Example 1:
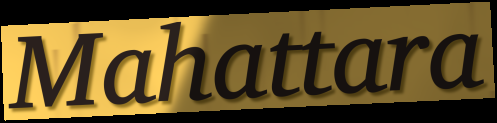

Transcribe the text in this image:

Mahattara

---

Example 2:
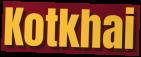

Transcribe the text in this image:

Kotkhai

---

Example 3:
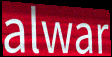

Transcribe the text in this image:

alwar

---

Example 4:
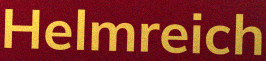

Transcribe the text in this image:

Helmreich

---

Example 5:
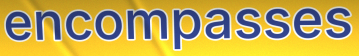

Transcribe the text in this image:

encompasses